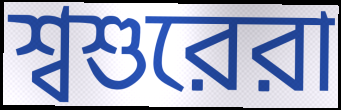
শ্বশুরেরা